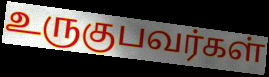
உருகுபவர்கள்